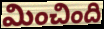
మించింది